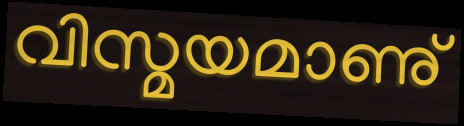
വിസ്മയമാണു്